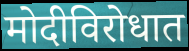
मोदीविरोधात